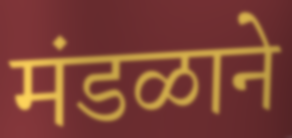
मंडळाने